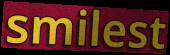
smilest